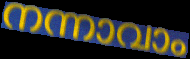
നന്നാവാം